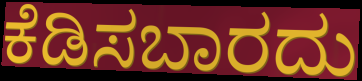
ಕೆಡಿಸಬಾರದು